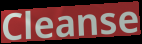
Cleanse